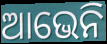
ଆଭେନି